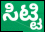
ಸಿಟ್ಟಿ